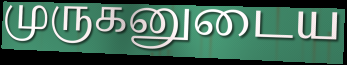
முருகனுடைய